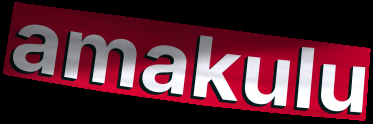
amakulu